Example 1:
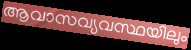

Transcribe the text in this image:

ആവാസവ്യവസ്ഥയിലും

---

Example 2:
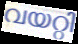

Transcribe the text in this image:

വയറ്റി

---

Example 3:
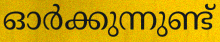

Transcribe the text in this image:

ഓർക്കുന്നുണ്ട്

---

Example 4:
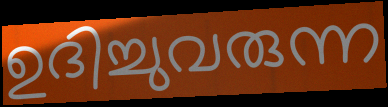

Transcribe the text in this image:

ഉദിച്ചുവരുന്ന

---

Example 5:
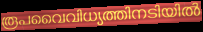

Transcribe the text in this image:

രൂപവൈവിധ്യത്തിനടിയിൽ